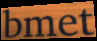
bmet